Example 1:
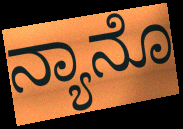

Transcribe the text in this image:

ನ್ಯಾನೊ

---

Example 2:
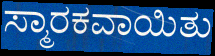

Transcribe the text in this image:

ಸ್ಮಾರಕವಾಯಿತು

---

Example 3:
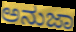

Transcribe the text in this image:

ಅನುಜಾ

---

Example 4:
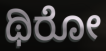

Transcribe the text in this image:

ಥಿರೋ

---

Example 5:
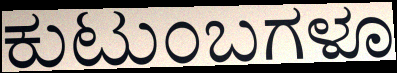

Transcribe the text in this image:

ಕುಟುಂಬಗಳೂ